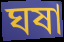
ঘষা